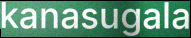
kanasugala